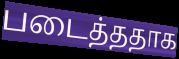
படைத்ததாக